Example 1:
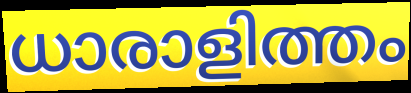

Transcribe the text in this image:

ധാരാളിത്തം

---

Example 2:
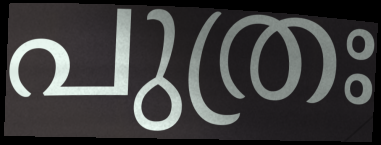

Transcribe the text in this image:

പുത്രഃ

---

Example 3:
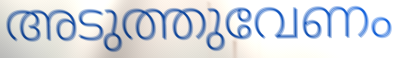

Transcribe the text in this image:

അടുത്തുവേണം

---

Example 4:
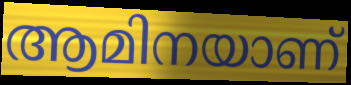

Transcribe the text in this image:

ആമിനയാണ്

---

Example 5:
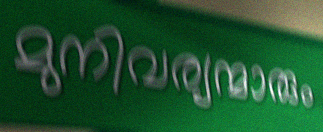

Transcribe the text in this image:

മുനിവര്യന്മാരും